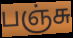
பஞ்சு